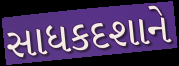
સાધકદશાને